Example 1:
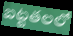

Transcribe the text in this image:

బట్టతలలో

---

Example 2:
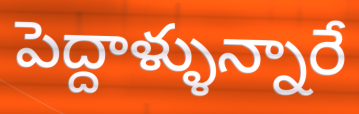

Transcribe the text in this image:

పెద్దాళ్ళున్నారే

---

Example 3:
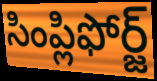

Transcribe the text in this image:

సింప్లిఫోర్జ్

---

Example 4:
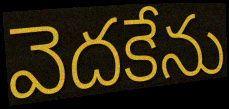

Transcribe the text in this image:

వెదకేను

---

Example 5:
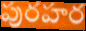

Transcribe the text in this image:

పురహర